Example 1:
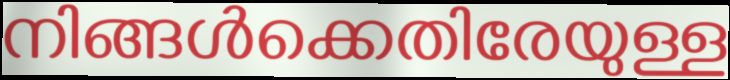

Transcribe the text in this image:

നിങ്ങൾക്കെതിരേയുള്ള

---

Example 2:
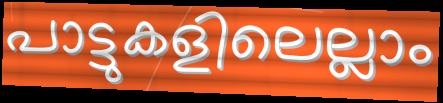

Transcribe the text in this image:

പാട്ടുകളിലെല്ലാം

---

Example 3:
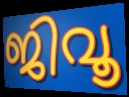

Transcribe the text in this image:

ജിവൂ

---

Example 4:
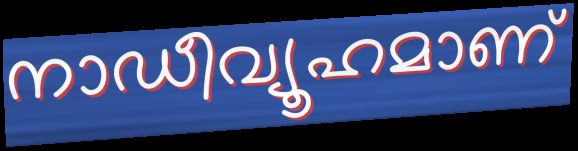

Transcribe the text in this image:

നാഡീവ്യൂഹമാണ്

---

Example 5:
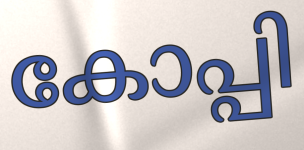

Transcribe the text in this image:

കോപ്പി